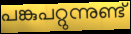
പങ്കുപറ്റുന്നുണ്ട്